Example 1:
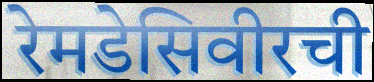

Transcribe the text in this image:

रेमडेसिवीरची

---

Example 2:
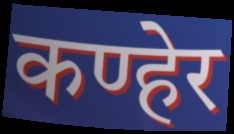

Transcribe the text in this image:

कण्हेर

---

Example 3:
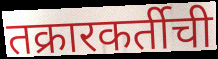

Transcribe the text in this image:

तक्रारकर्तीची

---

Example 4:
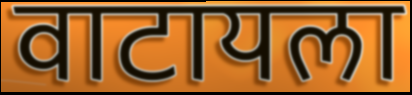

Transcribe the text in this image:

वाटायला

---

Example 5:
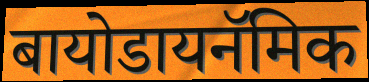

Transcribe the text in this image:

बायोडायनॅमिक